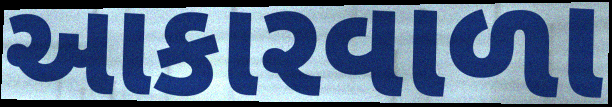
આકારવાળા